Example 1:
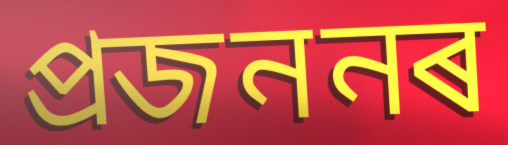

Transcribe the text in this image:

প্ৰজননৰ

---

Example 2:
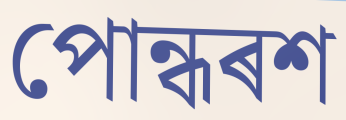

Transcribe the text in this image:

পোন্ধৰশ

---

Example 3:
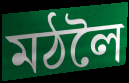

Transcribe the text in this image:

মঠলৈ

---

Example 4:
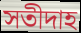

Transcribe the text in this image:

সতীদাহ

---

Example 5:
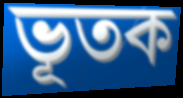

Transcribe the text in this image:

ভূতক